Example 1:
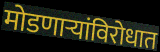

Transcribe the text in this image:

मोडणाऱ्यांविरोधात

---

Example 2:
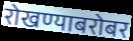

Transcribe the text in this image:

रोखण्याबरोबर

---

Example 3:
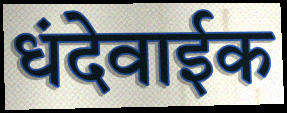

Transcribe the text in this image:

धंदेवाईक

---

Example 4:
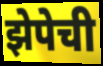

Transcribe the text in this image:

झेपेची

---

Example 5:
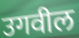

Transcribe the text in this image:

उगवील